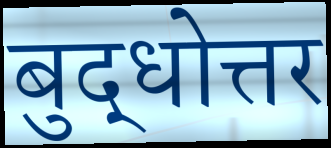
बुद्धोत्तर